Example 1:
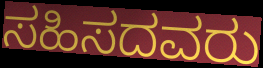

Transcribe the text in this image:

ಸಹಿಸದವರು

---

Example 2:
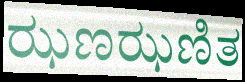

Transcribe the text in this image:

ಝಣಝಣಿತ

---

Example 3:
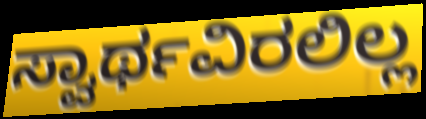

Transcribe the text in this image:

ಸ್ವಾರ್ಥವಿರಲಿಲ್ಲ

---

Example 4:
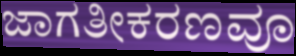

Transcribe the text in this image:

ಜಾಗತೀಕರಣವೂ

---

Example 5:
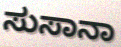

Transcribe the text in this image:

ಸುಸಾನಾ